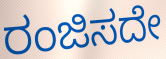
ರಂಜಿಸದೇ